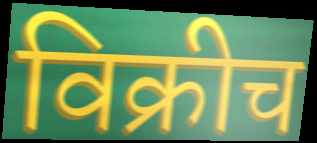
विक्रीच